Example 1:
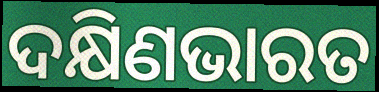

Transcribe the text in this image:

ଦକ୍ଷିଣଭାରତ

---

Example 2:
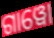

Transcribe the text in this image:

ଗାୱୋ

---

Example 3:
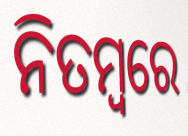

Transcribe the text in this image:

ନିତମ୍ୱରେ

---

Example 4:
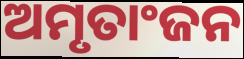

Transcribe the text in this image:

ଅମୃତାଂଜନ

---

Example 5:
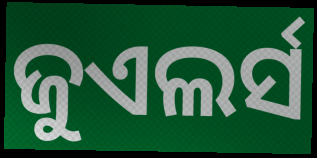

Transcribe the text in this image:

ଜୁଏଲର୍ସ